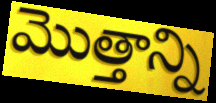
మొత్తాన్ని